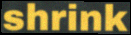
shrink